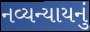
નવ્યન્યાયનું